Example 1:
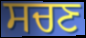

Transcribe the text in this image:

ਸਚਣ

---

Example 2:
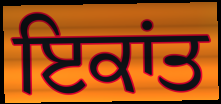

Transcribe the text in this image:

ਇਕਾਂਤ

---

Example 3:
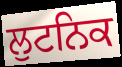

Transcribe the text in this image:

ਲੁਟਨਿਕ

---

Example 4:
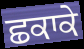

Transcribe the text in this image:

ਛਕਾਕੇ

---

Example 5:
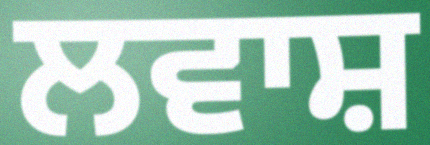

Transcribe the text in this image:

ਲਵਾਸ਼